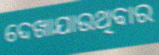
ଦେଖାଯାଉଥିବାର